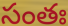
సంతః